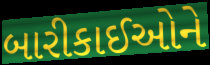
બારીકાઈઓને